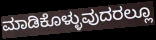
ಮಾಡಿಕೊಳ್ಳುವುದರಲ್ಲೂ